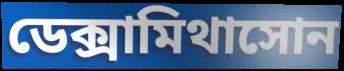
ডেক্সামিথাসোন